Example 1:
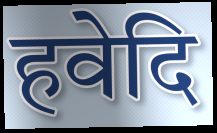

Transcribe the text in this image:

हवेदि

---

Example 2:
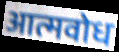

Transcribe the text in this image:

आत्मवोध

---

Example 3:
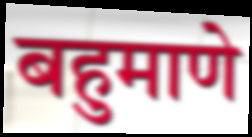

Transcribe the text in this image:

बहुमाणे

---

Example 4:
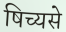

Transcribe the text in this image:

षिच्यसे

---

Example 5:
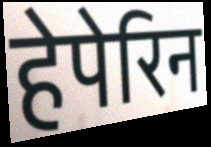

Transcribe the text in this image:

हेपेरिन